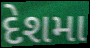
દેશમા